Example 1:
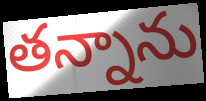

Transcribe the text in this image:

తన్నాను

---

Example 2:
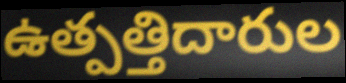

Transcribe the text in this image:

ఉత్పత్తిదారుల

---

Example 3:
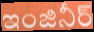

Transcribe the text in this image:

ఇంజినీర్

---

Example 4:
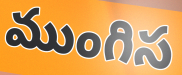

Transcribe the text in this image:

ముంగిస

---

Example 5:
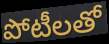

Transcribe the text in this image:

పోటీలతో